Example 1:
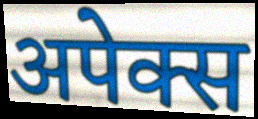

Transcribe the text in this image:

अपेक्स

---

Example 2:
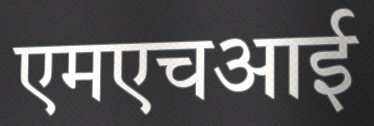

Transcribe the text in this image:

एमएचआई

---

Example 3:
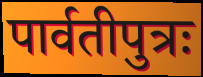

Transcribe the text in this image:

पार्वतीपुत्रः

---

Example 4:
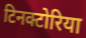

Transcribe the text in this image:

टिनक्टोरिया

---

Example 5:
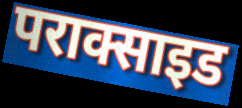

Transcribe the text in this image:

पराक्साइड